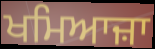
ਖਮਿਆਜ਼ਾ